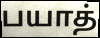
பயாத்